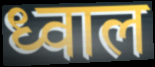
ध्वाल